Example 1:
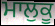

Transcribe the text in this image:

ਮਾਲੁਕੂ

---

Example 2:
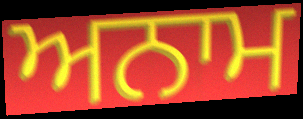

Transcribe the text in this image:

ਅਨਾਮ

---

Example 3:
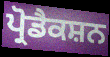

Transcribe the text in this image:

ਪ੍ਰੋਡੈਕਸ਼ਨ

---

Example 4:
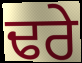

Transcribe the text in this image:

ਢਰੇ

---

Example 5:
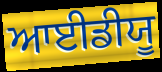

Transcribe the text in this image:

ਆਈਡੀਯੂ